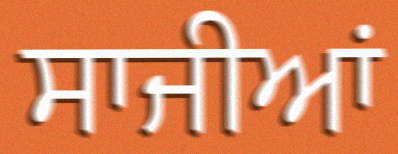
ਸਾਜੀਆਂ